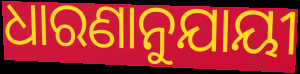
ଧାରଣାନୁଯାୟୀ